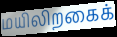
மயிலிறகைக்